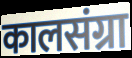
कालसंग्रा